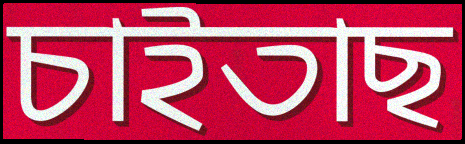
চাইতাছ